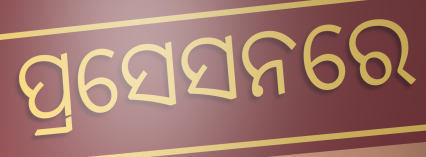
ପ୍ରସେସନରେ